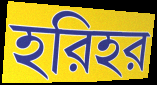
হরিহর